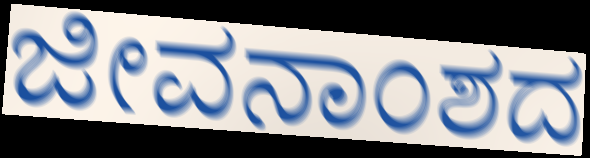
ಜೀವನಾಂಶದ